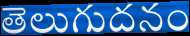
తెలుగుదనం